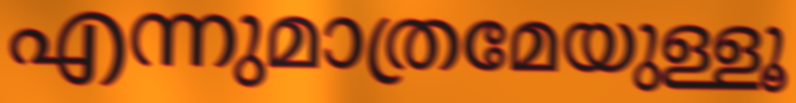
എന്നുമാത്രമേയുള്ളൂ